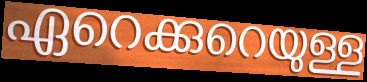
ഏറെക്കുറെയുള്ള